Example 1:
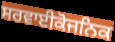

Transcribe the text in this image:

ਸਰਵਾਈਕੋਜਨਿਕ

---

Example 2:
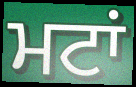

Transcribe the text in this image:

ਮਟਾਂ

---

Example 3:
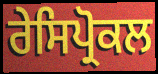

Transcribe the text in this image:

ਰੇਸਿਪ੍ਰੋਕਲ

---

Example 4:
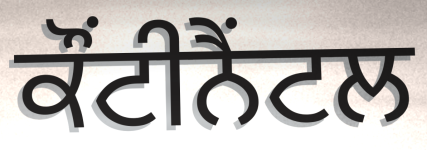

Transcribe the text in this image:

ਕੌਂਟੀਨੈਂਟਲ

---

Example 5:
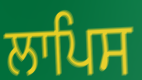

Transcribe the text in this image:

ਲਾਪਿਸ